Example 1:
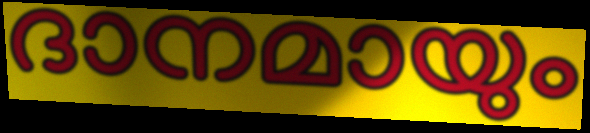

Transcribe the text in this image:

ദാനമായും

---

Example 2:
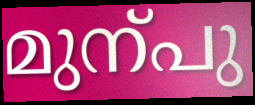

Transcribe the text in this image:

മുന്പു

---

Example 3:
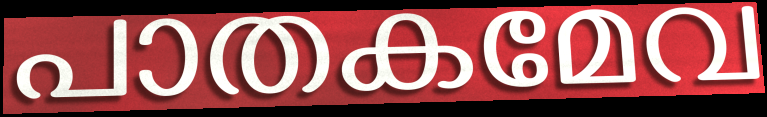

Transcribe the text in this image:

പാതകമേവ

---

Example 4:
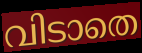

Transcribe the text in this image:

വിടാതെ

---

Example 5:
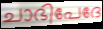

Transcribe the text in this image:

ചാഭിപേദേ